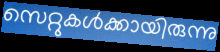
സെറ്റുകൾക്കായിരുന്നു